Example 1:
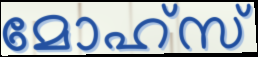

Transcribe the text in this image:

മോഹ്സ്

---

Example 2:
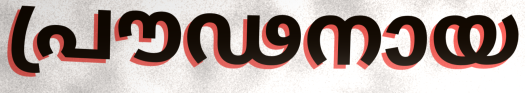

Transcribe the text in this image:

പ്രൗഢനായ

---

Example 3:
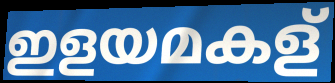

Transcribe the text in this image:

ഇളയമകള്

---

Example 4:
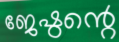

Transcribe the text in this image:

ജേഷ്ഠന്റെ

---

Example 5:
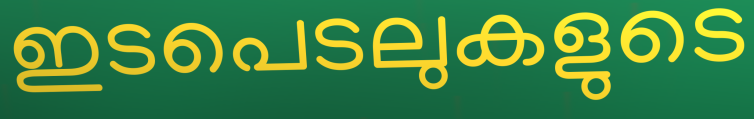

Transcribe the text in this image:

ഇടപെടലുകളുടെ